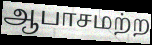
ஆபாசமற்ற